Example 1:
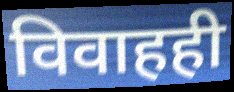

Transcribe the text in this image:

विवाहही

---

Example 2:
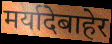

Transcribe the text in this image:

मर्यादेबाहेर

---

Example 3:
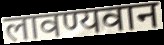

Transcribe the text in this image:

लावण्यवान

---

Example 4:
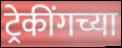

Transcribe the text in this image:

ट्रेकींगच्या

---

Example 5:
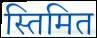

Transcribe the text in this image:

स्तिमित